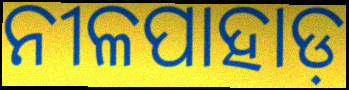
ନୀଳପାହାଡ଼